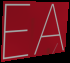
EA